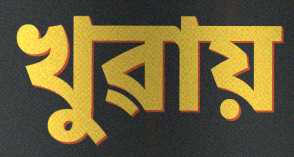
খুৱায়